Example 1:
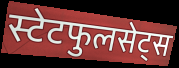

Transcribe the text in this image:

स्टेटफुलसेट्स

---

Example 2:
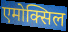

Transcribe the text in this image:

एमोक्सिल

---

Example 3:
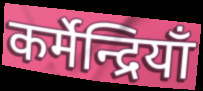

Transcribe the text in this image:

कर्मेन्द्रियाँ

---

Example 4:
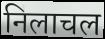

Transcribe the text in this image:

निलाचल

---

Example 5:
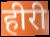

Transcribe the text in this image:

हीरी